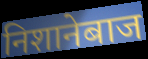
निशानेबाज